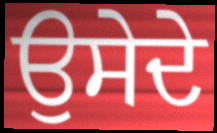
ਉਸੇਦੇ